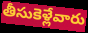
తీసుకెళ్లేవారు